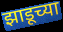
झाडूच्या